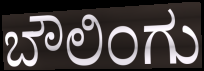
ಬೌಲಿಂಗು